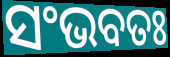
ସଂଭବତଃ